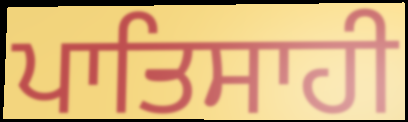
ਪਾਤਿਸਾਹੀ